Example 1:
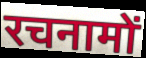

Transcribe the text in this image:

रचनामों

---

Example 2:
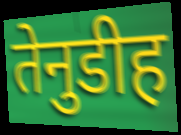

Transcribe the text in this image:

तेनुडीह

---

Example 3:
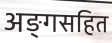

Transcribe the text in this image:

अङ्गसहित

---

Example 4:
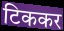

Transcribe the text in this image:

टिककर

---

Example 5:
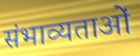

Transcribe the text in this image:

संभाव्यताओं